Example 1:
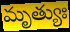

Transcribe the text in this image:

మృత్యుః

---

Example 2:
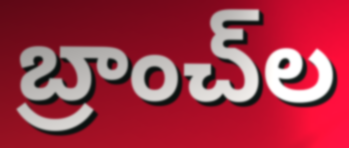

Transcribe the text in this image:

బ్రాంచ్‌ల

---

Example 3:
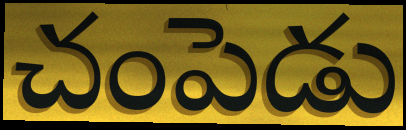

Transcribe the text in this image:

చంపెడు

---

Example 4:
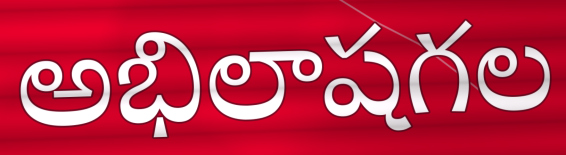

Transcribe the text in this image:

అభిలాషగల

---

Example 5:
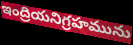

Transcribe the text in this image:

ఇంద్రియనిగ్రహమును